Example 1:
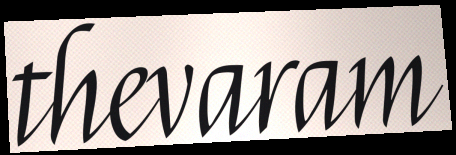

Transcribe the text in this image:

thevaram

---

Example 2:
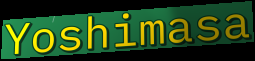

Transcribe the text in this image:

Yoshimasa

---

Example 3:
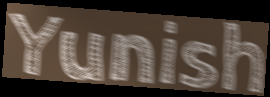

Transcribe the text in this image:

Yunish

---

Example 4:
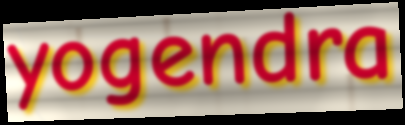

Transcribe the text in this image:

yogendra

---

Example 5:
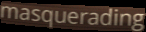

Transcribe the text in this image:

masquerading